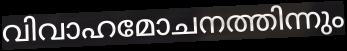
വിവാഹമോചനത്തിന്നും